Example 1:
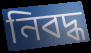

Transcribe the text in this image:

নিবদ্ধ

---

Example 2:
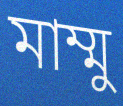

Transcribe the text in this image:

মাম্মু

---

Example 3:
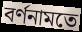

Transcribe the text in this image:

বর্ণনামতে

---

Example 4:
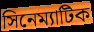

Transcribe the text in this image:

সিনেম্যাটিক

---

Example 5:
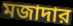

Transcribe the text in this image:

মজাদার